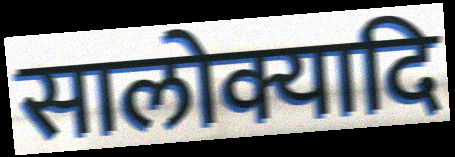
सालोक्यादि